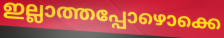
ഇല്ലാത്തപ്പോഴൊക്കെ